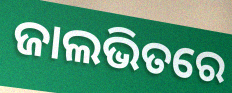
ଜାଲଭିତରେ